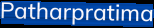
Patharpratima